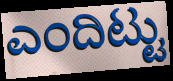
ಎಂದಿಟ್ಟು